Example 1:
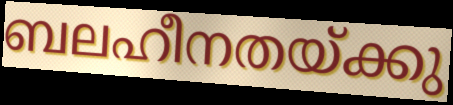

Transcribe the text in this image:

ബലഹീനതയ്ക്കു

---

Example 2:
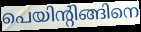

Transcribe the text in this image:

പെയിന്റിങ്ങിനെ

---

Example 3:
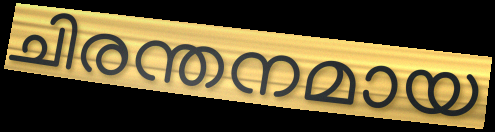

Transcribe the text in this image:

ചിരന്തനമായ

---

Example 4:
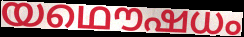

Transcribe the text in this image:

യഥൌഷധം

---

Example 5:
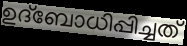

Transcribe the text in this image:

ഉദ്ബോധിപ്പിച്ചത്